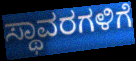
ಸ್ಥಾವರಗಳಿಗೆ